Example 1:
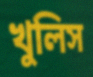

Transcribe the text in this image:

খুলিস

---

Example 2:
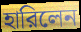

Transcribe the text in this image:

হারিলেন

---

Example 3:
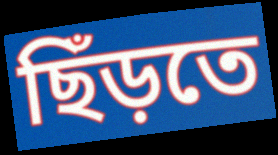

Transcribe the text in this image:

ছিঁড়তে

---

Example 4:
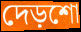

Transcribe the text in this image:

দেড়শো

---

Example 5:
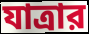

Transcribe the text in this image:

যাত্রার